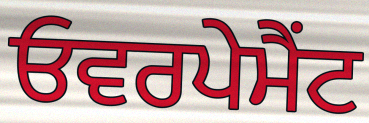
ਓਵਰਪੇਮੈਂਟ